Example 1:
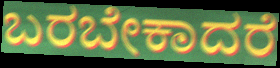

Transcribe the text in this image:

ಬರಬೇಕಾದರೆ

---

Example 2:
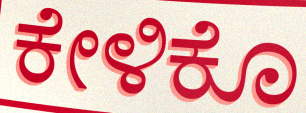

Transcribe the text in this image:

ಕೇಳಿಕೊ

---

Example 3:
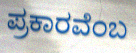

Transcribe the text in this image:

ಪ್ರಕಾರವೆಂಬ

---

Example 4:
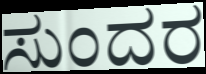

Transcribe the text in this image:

ಸುಂದರ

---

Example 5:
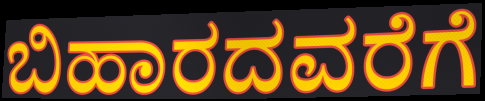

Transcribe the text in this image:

ಬಿಹಾರದವರೆಗೆ